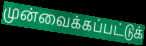
முன்வைக்கப்பட்டுக்